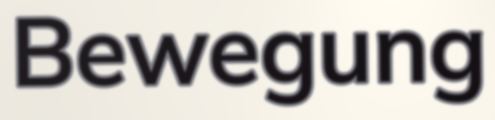
Bewegung